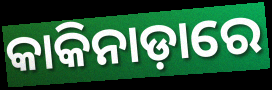
କାକିନାଡ଼ାରେ